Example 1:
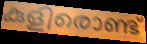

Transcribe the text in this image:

കുളിരൊണ്ട്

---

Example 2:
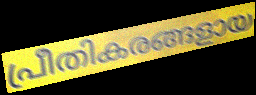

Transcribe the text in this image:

പ്രീതികരങ്ങളായ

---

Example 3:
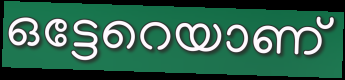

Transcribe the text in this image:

ഒട്ടേറെയാണ്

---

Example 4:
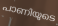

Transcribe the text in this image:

പാണിയുടെ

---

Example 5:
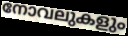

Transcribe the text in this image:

നോവലുകളും